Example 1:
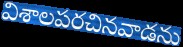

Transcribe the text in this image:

విశాలపరచినవాడను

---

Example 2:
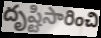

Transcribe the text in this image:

దృష్టిసారించి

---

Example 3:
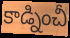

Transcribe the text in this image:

కాడ్నించీ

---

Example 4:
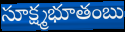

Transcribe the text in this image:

సూక్ష్మభూతంబు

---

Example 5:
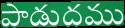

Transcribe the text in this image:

పాడుదము